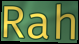
Rah